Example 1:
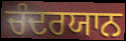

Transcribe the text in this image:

ਚੰਦਰਯਾਨ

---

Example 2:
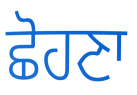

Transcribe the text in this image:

ਛੋਹਣਾ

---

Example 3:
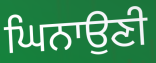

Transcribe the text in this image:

ਘਿਨਾਉਣੀ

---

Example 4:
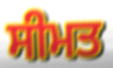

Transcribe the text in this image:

ਸੀਮਤ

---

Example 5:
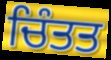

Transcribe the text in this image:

ਚਿੰਤਤ